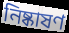
নিষ্কাষণ